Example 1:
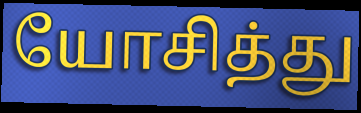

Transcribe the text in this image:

யோசித்து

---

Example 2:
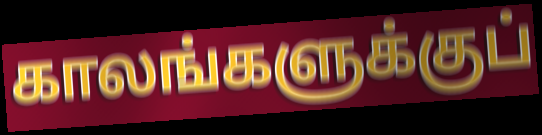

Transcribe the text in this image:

காலங்களுக்குப்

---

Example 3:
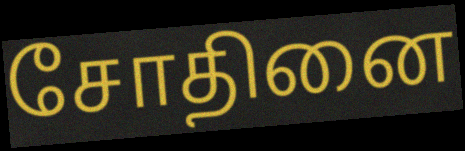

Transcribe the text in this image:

சோதினை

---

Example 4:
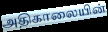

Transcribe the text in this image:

அதிகாலையின்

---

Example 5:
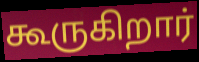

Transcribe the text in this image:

கூருகிறார்